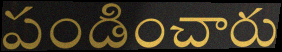
పండించారు